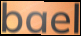
bael